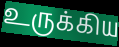
உருக்கிய